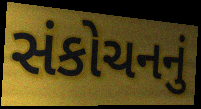
સંકોચનનું